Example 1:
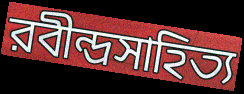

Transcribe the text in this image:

রবীন্দ্রসাহিত্য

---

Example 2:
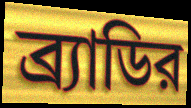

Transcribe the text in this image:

ব্র্যাডির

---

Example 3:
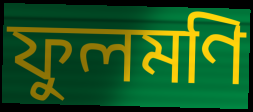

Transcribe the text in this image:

ফুলমণি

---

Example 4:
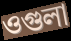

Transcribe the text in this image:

ওগুলা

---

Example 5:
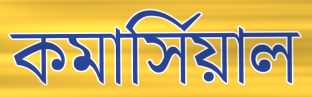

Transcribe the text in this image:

কমার্সিয়াল